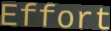
Effort